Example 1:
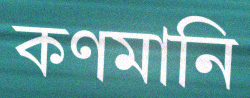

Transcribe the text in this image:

কণমানি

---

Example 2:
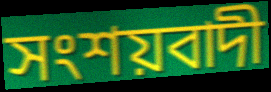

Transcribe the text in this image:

সংশয়বাদী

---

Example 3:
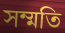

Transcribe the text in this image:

সম্মতি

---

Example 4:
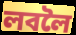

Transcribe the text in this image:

লবলৈ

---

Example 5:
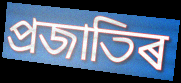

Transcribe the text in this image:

প্ৰজাতিৰ